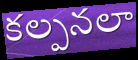
కల్పనలా